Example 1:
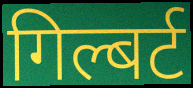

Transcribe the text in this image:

गिल्बर्ट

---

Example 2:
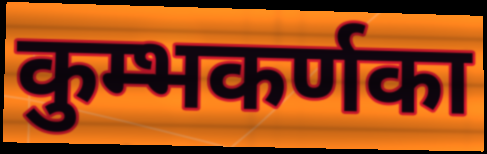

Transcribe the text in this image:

कुम्भकर्णका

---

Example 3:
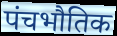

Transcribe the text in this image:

पंचभौतिक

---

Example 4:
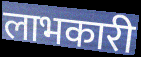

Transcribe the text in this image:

लाभकारी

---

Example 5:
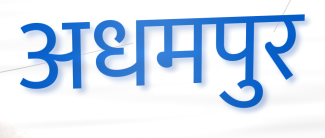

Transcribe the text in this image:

अधमपुर